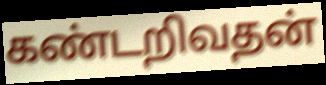
கண்டறிவதன்